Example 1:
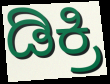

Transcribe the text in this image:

ಡಿಕ್ರಿ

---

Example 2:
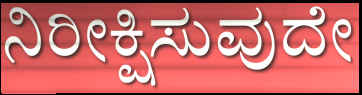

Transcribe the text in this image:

ನಿರೀಕ್ಷಿಸುವುದೇ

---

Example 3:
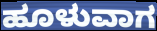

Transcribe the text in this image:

ಹೂಳುವಾಗ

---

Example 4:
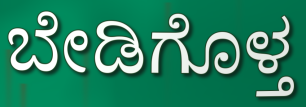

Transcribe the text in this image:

ಬೇಡಿಗೊಳ್ತ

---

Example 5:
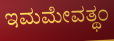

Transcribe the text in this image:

ಇಮಮೇವತ್ಥಂ